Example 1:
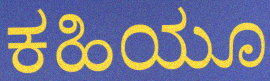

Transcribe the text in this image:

ಕಹಿಯೂ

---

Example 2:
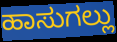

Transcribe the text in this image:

ಹಾಸುಗಲ್ಲು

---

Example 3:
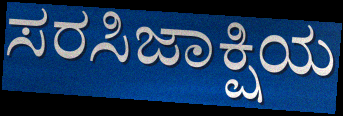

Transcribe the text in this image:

ಸರಸಿಜಾಕ್ಷಿಯ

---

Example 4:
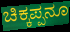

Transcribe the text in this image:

ಚಿಕ್ಕಪ್ಪನೂ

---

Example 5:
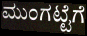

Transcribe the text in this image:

ಮುಂಗಟ್ಟೆಗೆ